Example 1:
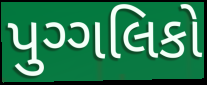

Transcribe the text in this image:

પુગ્ગલિકો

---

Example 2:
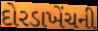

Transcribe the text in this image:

દોરડાખેંચની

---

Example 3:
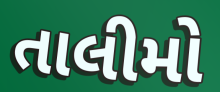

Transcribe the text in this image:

તાલીમો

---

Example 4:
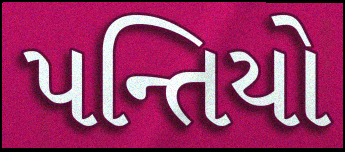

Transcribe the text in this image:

પન્તિયો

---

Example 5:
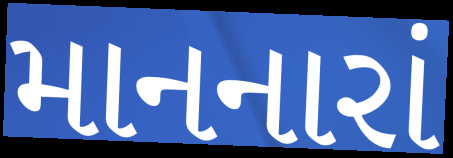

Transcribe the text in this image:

માનનારાં